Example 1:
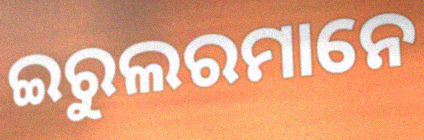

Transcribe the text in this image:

ଇରୁଲରମାନେ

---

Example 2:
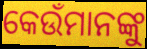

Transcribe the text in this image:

କେଉଁମାନଙ୍କୁ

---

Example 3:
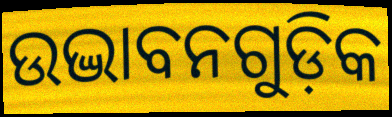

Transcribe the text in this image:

ଉଦ୍ଭାବନଗୁଡ଼ିକ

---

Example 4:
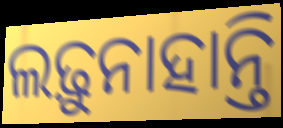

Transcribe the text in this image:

ଲଢ଼ୁନାହାନ୍ତି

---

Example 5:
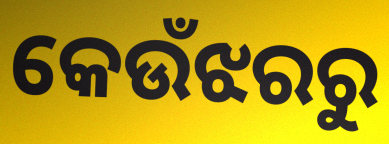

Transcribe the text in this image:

କେଉଁଝରରୁ